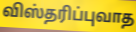
விஸ்தரிப்புவாத